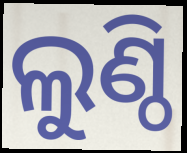
ଲୁଣ୍ଠି